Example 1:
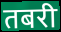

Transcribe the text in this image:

तबरी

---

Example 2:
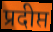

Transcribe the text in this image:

प्रदीप्त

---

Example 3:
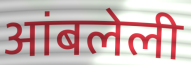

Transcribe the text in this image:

आंबलेली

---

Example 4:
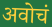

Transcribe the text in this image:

अवोचं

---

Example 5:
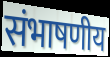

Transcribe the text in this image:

संभाषणीय